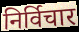
निर्विचार